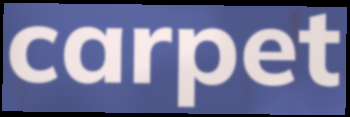
carpet